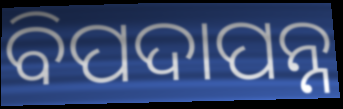
ବିପଦାପନ୍ନ